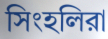
সিংহলিরা